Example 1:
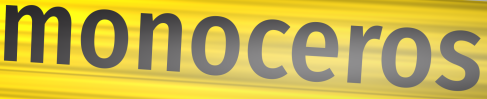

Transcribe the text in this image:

monoceros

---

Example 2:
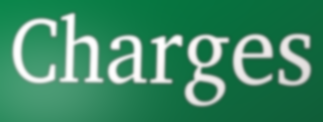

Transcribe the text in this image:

Charges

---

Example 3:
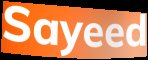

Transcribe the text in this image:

Sayeed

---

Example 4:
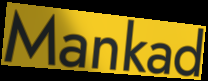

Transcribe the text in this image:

Mankad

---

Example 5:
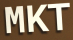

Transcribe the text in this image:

MKT